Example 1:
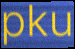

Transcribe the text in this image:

pku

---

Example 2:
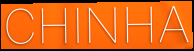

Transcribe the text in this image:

CHINHA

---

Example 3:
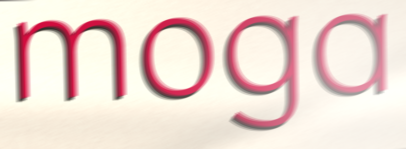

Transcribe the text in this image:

moga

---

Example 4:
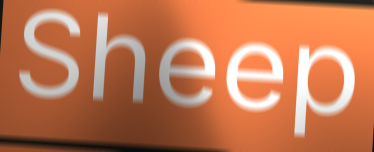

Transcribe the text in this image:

Sheep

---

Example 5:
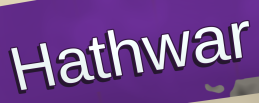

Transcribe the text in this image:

Hathwar